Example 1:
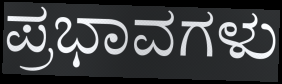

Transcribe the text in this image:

ಪ್ರಭಾವಗಳು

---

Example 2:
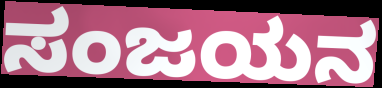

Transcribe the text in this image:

ಸಂಜಯನ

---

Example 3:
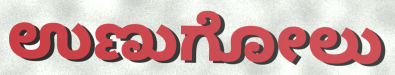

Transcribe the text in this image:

ಉಣುಗೋಲು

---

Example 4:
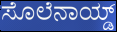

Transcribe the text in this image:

ಸೊಲೆನಾಯ್ಡ್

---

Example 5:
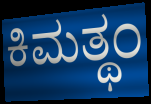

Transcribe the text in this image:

ಕಿಮತ್ಥಂ